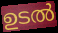
ഉടൽ